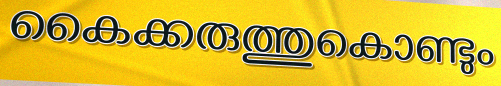
കൈക്കരുത്തുകൊണ്ടും